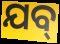
ଯବ୍